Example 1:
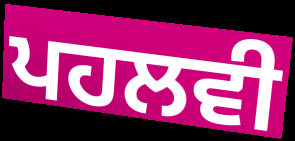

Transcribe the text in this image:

ਪਹਲਵੀ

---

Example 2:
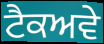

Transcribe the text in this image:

ਟੈਕਅਵੇ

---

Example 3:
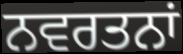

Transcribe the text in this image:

ਨਵਰਤਨਾਂ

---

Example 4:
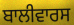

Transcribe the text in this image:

ਬਾਲੀਵਾਰਸ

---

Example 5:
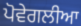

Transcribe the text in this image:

ਪੋਵੇਗਲੀਆ